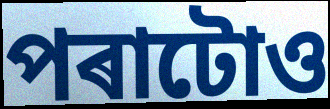
পৰাটোও